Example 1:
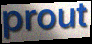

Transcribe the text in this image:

prout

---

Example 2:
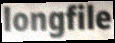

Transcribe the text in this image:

longfile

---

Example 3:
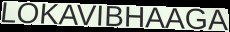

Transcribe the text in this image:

LOKAVIBHAAGA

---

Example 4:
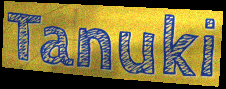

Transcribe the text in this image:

Tanuki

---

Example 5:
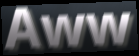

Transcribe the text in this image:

Aww